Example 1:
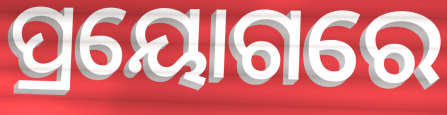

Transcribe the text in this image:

ପ୍ରୟୋଗରେ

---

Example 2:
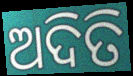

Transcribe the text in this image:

ଅଦିତି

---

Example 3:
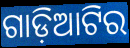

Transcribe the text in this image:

ଗାଡ଼ିଆଟିର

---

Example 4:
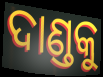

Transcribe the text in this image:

ଦାଣ୍ଡକୁ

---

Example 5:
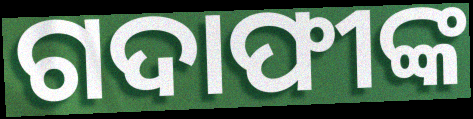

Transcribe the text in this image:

ଗଦାଫୀଙ୍କ